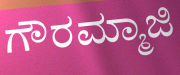
ಗೌರಮ್ಮಾಜಿ